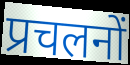
प्रचलनों